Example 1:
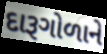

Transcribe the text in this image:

દારૂગોળાને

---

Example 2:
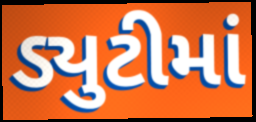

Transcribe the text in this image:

ડ્યુટીમાં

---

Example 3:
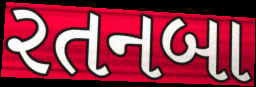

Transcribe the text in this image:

રતનબા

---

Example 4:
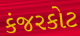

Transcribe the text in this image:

કંજરકોટ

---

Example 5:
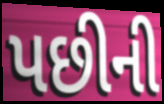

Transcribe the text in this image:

પછીની